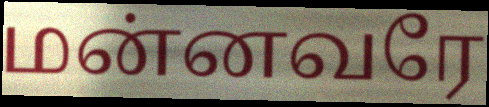
மன்னவரே